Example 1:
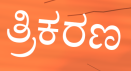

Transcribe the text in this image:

ತ್ರಿಕರಣ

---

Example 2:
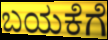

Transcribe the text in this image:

ಬಯಕೆಗೆ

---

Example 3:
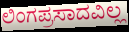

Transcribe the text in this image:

ಲಿಂಗಪ್ರಸಾದವಿಲ್ಲ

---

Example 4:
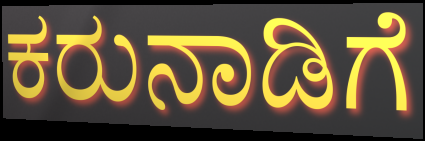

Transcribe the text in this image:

ಕರುನಾಡಿಗೆ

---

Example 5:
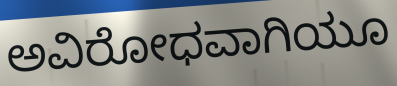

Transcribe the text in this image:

ಅವಿರೋಧವಾಗಿಯೂ